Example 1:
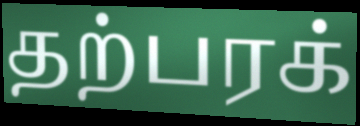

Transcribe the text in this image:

தற்பரக்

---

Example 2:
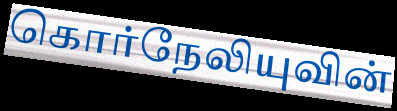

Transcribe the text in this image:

கொர்நேலியுவின்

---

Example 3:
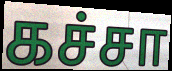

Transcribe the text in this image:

கச்சா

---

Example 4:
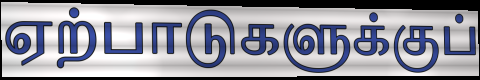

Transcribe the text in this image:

ஏற்பாடுகளுக்குப்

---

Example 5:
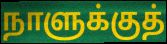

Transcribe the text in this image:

நாளுக்குத்